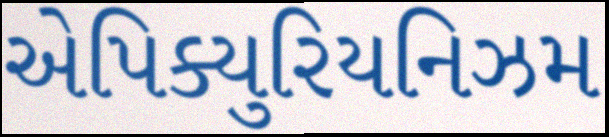
એપિક્યુરિયનિઝમ